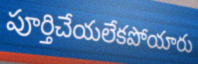
పూర్తిచేయలేకపోయారు